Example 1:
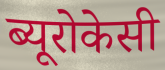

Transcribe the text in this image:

ब्यूरोकेसी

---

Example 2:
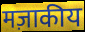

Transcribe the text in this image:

मज़ाकीय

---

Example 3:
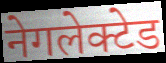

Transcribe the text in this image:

नेगलेक्टेड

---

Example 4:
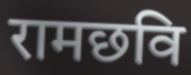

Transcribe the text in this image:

रामछवि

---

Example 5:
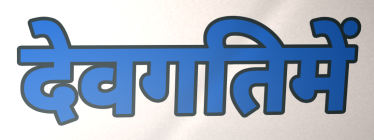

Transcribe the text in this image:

देवगतिमें